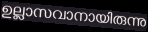
ഉല്ലാസവാനായിരുന്നു